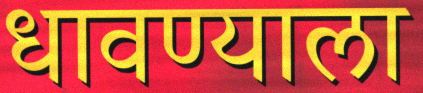
धावण्याला